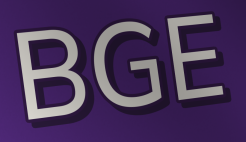
BGE